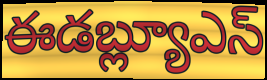
ఈడబ్ల్యూఎస్